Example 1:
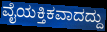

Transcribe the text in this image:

ವೈಯಕ್ತಿಕವಾದದ್ದು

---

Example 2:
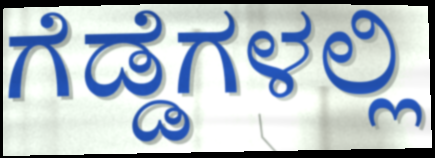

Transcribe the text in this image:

ಗೆಡ್ಡೆಗಳಲ್ಲಿ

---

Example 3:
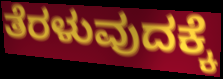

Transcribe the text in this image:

ತೆರಳುವುದಕ್ಕೆ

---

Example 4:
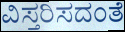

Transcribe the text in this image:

ವಿಸ್ತರಿಸದಂತೆ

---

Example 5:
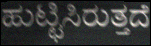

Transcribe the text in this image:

ಹುಟ್ಟಿಸಿರುತ್ತದೆ